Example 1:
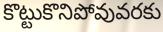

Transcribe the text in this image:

కొట్టుకొనిపోవువరకు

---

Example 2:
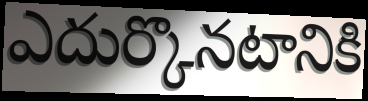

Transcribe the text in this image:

ఎదుర్కొనటానికి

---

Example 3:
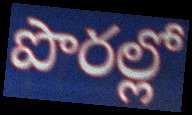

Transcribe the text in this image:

పొరల్లో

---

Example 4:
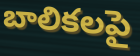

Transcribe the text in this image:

బాలికలపై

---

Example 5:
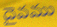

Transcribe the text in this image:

దైవము